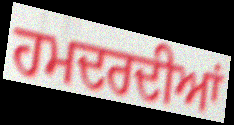
ਹਮਦਰਦੀਆਂ